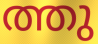
ത്തു